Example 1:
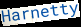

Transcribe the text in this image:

Harnetty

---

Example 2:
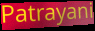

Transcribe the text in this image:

Patrayani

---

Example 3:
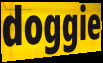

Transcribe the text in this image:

doggie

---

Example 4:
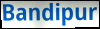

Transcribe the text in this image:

Bandipur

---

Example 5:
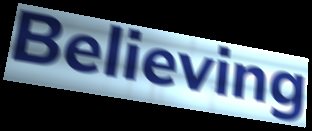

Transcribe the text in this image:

Believing